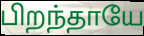
பிறந்தாயே